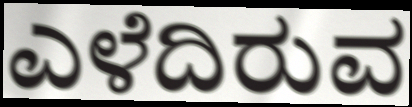
ಎಳೆದಿರುವ